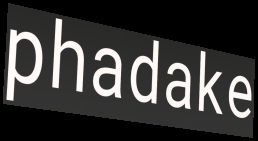
phadake